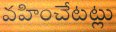
వహించేటట్లు